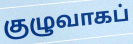
குழுவாகப்